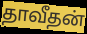
தாவீதன்